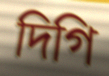
দিগি